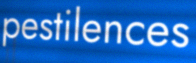
pestilences